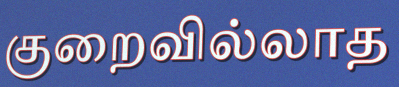
குறைவில்லாத